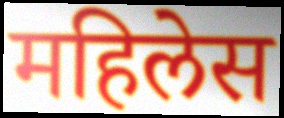
महिलेस